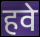
हवे